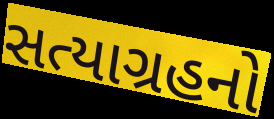
સત્યાગ્રહનો